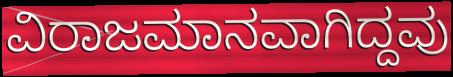
ವಿರಾಜಮಾನವಾಗಿದ್ದವು